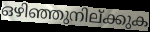
ഒഴിഞ്ഞുനില്ക്കുക